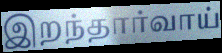
இறந்தார்வாய்